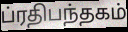
ப்ரதிபந்தகம்